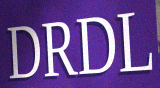
DRDL